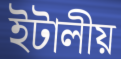
ইটালীয়